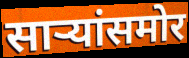
साऱ्यांसमोर